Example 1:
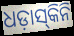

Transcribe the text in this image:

ଧଡ଼ାସ୍‌କିନି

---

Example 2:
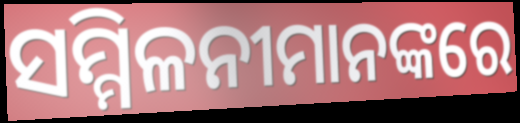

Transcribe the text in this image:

ସମ୍ମିଳନୀମାନଙ୍କରେ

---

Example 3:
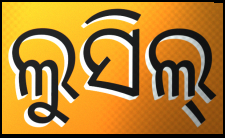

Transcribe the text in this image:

ଲୁସିଲ୍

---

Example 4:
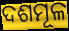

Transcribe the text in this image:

ଦଶମୂଳ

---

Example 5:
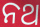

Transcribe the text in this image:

ନଥ